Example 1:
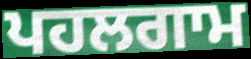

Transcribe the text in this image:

ਪਹਲਗਾਮ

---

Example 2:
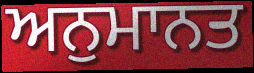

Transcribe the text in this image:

ਅਨੁਮਾਨਤ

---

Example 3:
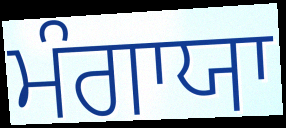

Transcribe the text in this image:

ਮੰਗਾਯਾ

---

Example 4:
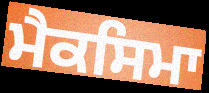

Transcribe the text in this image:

ਮੈਕਸਿਮਾ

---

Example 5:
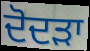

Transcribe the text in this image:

ਦੋਦੜਾ